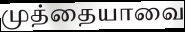
முத்தையாவை